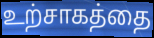
உற்சாகத்தை